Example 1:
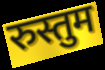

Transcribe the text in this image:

रुस्तुम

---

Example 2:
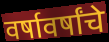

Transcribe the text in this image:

वर्षावर्षांचे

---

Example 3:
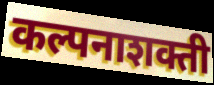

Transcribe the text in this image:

कल्पनाशक्ती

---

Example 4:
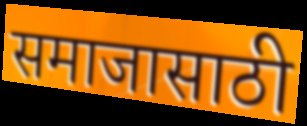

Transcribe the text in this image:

समाजासाठी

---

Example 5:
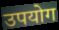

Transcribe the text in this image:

उपयोग